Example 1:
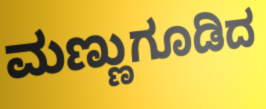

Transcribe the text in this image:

ಮಣ್ಣುಗೂಡಿದ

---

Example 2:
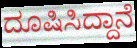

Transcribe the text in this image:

ದೂಷಿಸಿದ್ದಾನೆ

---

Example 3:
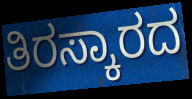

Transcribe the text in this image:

ತಿರಸ್ಕಾರದ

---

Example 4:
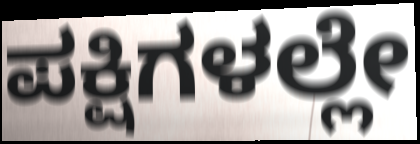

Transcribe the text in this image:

ಪಕ್ಷಿಗಳಲ್ಲೇ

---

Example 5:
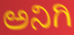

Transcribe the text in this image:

ಅನಿಗಿ